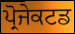
ਪ੍ਰੋਜੇਕਟਡ